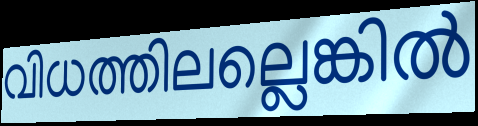
വിധത്തിലല്ലെങ്കിൽ